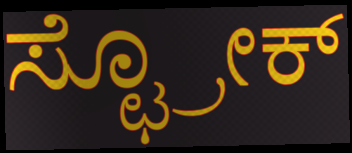
ಸ್ಟ್ರೋಕ್